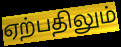
ஏற்பதிலும்